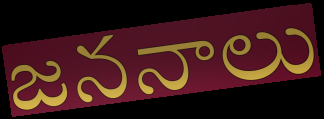
జననాలు